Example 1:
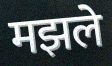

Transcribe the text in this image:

मझले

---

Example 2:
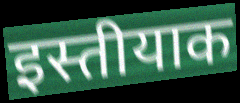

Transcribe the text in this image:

इस्तीयाक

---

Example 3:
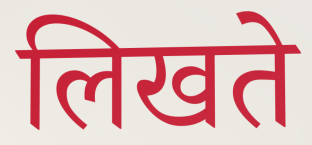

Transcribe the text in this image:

लिखते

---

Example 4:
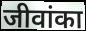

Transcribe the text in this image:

जीवांका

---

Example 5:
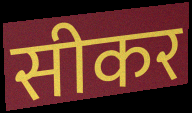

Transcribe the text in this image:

सीकर